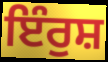
ਇੰਰੁਸ਼